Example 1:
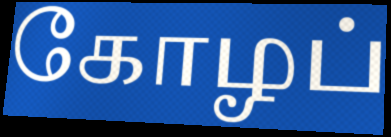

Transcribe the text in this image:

கோழப்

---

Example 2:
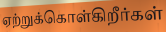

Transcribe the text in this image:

ஏற்றுக்கொள்கிறீர்கள்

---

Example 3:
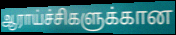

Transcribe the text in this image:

ஆராய்ச்சிகளுக்கான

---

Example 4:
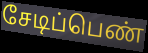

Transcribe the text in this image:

சேடிப்பெண்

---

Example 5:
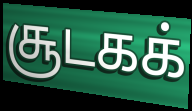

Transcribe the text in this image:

சூடகக்